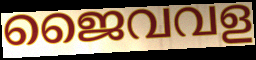
ജൈവവള